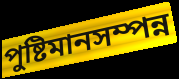
পুষ্টিমানসম্পন্ন